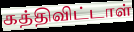
கத்திவிட்டாள்